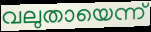
വലുതായെന്ന്